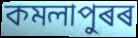
কমলাপুৰৰ